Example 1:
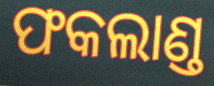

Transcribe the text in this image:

ଫକଲାଣ୍ଡ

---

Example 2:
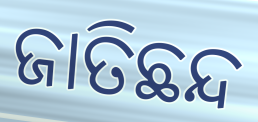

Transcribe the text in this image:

ଜାତିଛନ୍ଦ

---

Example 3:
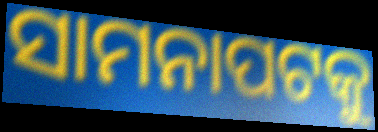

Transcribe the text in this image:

ସାମନାପଟକୁ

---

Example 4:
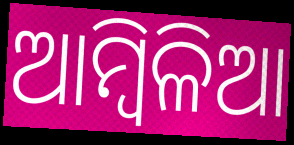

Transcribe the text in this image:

ଆମ୍ୱିଳିଆ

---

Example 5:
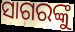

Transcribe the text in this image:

ସାଗରଙ୍କୁ